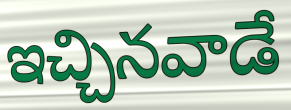
ఇచ్చినవాడే